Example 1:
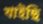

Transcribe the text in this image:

খাইছি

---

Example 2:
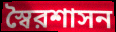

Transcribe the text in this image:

স্বৈরশাসন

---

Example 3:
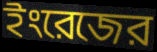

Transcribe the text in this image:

ইংরেজের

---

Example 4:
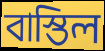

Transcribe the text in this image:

বাস্তিল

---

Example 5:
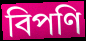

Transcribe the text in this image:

বিপণি